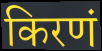
किरणं